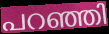
പറഞ്ഞി